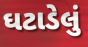
ઘટાડેલું